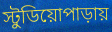
স্টুডিয়োপাড়ায়